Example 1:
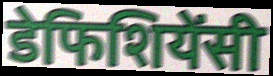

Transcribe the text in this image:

डेफिशियेंसी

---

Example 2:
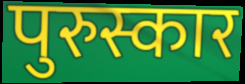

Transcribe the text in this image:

पुरुस्‍कार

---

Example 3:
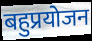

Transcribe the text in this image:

बहुप्रयोजन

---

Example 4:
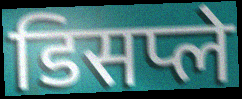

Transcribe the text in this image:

डिसप्ले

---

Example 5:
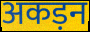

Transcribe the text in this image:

अकड़न